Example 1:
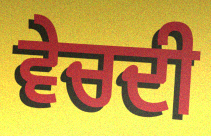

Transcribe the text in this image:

ਵੇਚਦੀ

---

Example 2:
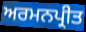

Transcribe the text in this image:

ਅਰਮਨਪ੍ਰੀਤ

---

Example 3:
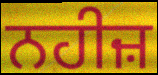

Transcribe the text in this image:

ਨਹੀਜ਼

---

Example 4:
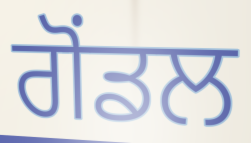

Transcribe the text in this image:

ਗੋਂਡਲ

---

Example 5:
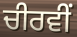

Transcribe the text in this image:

ਚੀਰਵੀਂ